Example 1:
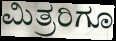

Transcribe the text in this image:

ಮಿತ್ರರಿಗೂ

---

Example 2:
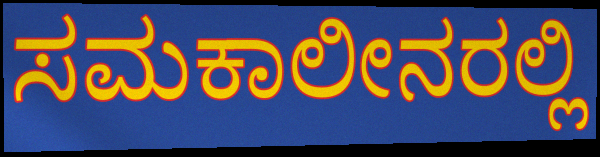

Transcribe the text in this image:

ಸಮಕಾಲೀನರಲ್ಲಿ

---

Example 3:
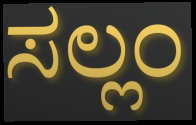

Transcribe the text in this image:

ಸಲ್ಲಂ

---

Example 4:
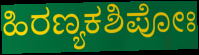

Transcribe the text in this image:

ಹಿರಣ್ಯಕಶಿಪೋಃ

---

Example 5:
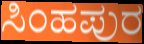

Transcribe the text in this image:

ಸಿಂಹಪುರ